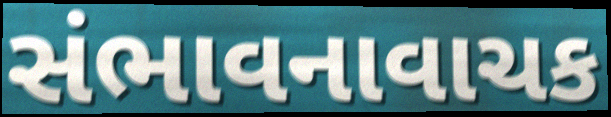
સંભાવનાવાચક